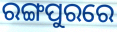
ରଙ୍ଗପୁରରେ